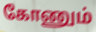
கோணும்